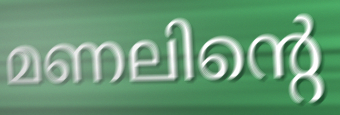
മണലിന്റെ